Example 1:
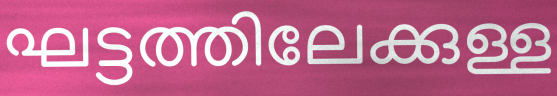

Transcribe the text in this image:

ഘട്ടത്തിലേക്കുള്ള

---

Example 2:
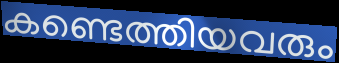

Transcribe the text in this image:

കണ്ടെത്തിയവരും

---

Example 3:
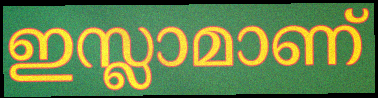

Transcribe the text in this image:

ഇസ്ലാമാണ്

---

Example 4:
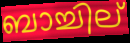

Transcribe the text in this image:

ബാച്ചില്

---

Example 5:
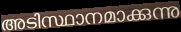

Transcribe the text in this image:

അടിസ്ഥാനമാക്കുന്നു